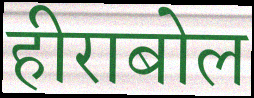
हीराबोल